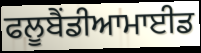
ਫਲੂਬੈਂਡੀਆਮਾਈਡ